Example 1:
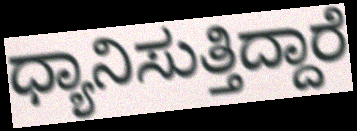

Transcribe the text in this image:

ಧ್ಯಾನಿಸುತ್ತಿದ್ದಾರೆ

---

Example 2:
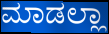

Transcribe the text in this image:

ಮಾಡಲ್ಲಾ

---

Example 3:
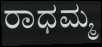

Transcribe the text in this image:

ರಾಧಮ್ಮ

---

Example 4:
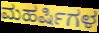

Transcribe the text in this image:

ಮಹರ್ಷಿಗಳ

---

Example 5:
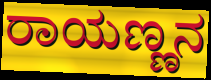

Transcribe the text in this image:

ರಾಯಣ್ಣನ